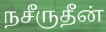
நசீருதீன்